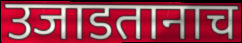
उजाडतानाच